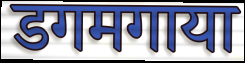
डगमगाया